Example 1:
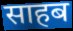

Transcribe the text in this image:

साहब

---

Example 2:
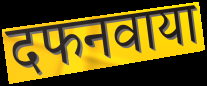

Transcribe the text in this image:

दफनवाया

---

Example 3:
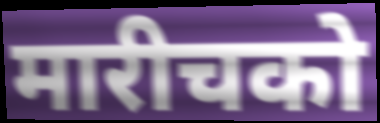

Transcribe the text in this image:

मारीचको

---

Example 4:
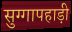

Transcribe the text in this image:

सुग्गापहाड़ी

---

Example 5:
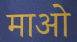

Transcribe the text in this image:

माओ